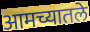
आमच्यातले